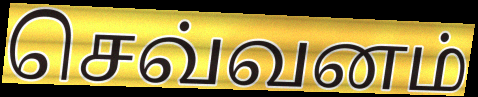
செவ்வனம்